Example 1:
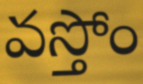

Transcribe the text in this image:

వస్తోం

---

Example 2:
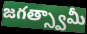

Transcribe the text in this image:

జగత్స్వామీ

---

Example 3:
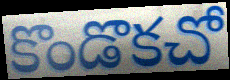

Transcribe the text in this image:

కొండొకచో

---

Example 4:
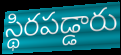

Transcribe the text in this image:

స్థిరపడ్డారు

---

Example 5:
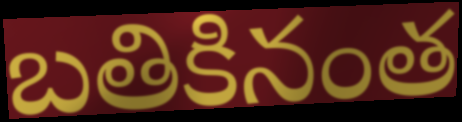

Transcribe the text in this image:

బతికినంత